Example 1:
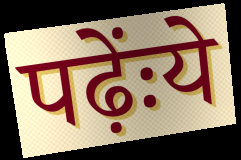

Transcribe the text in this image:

पढ़ेंःये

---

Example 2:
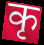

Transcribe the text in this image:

कृ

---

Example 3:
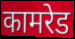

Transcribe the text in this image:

कामरेड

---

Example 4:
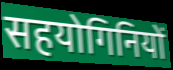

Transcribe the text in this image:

सहयोगिनियों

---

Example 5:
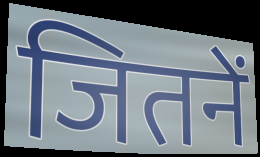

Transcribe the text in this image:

जितनें